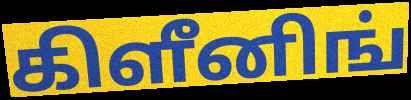
கிளீனிங்